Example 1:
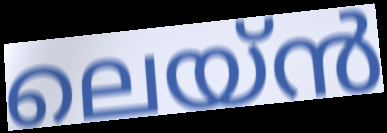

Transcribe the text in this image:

ലെയ്ൻ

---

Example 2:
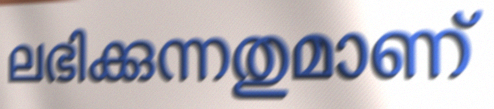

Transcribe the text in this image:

ലഭിക്കുന്നതുമാണ്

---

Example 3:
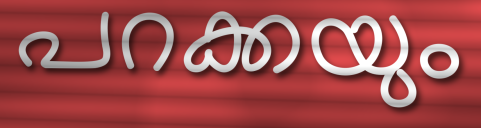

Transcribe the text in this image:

പറക്കയും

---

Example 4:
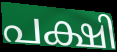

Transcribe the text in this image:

പക്ഷി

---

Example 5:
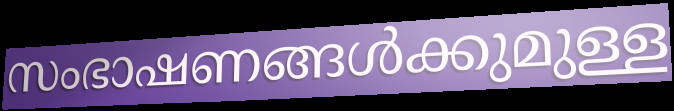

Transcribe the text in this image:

സംഭാഷണങ്ങൾക്കുമുള്ള